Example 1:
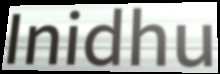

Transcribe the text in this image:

Inidhu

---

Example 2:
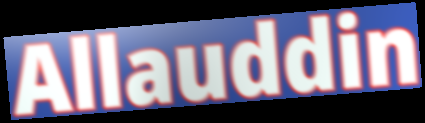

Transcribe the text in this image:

Allauddin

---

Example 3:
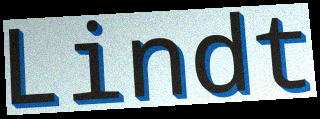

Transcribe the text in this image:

Lindt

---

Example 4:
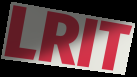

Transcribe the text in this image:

LRIT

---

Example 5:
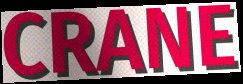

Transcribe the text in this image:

CRANE